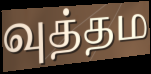
வுத்தம